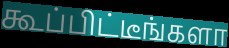
கூப்பிட்டீங்களா